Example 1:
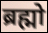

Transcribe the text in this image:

ब्रह्मो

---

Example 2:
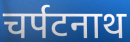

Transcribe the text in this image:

चर्पटनाथ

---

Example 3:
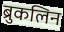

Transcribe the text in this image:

ब्रुकलिन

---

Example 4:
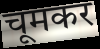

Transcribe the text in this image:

चूमकर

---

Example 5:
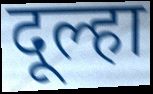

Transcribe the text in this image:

दूल्हा